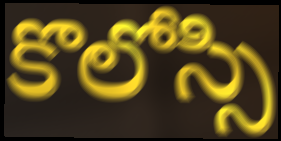
కొలోస్సి